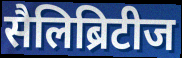
सैलिब्रिटीज